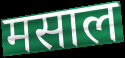
मसाल